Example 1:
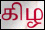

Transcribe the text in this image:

கிழ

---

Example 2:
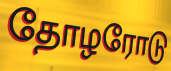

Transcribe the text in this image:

தோழரோடு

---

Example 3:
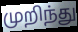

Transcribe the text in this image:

முறிந்து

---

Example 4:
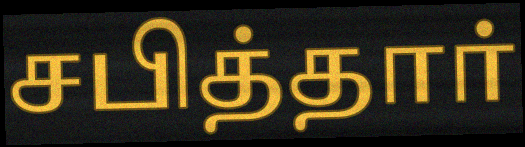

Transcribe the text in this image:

சபித்தார்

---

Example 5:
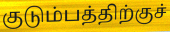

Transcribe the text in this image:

குடும்பத்திற்குச்